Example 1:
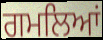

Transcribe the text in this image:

ਗਮਲਿਆਂ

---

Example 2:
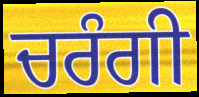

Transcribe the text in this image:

ਚਰੰਗੀ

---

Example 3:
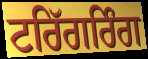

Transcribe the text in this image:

ਟਰਿੱਗਰਿੰਗ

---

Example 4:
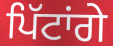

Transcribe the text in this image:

ਪਿੱਟਾਂਗੇ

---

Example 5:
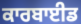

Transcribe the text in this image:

ਕਾਰਬਾਈਡ